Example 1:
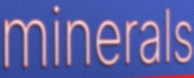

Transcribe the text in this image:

minerals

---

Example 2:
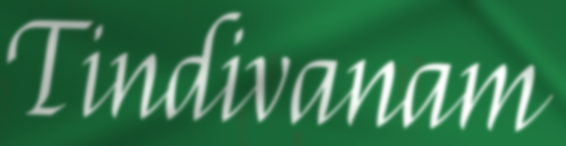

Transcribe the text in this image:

Tindivanam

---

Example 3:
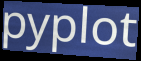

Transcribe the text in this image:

pyplot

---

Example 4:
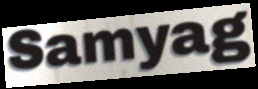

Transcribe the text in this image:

Samyag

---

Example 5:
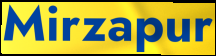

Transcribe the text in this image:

Mirzapur